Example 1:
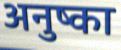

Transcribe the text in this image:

अनुष्का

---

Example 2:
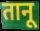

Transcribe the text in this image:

तानू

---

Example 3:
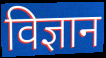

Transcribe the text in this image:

विज्ञान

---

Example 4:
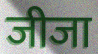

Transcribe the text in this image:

जीजा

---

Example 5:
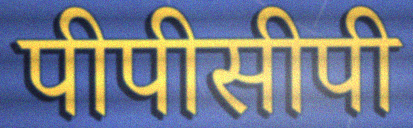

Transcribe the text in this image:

पीपीसीपी